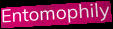
Entomophily